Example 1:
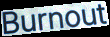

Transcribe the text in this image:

Burnout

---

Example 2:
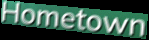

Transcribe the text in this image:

Hometown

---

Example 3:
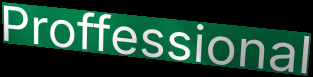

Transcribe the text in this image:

Proffessional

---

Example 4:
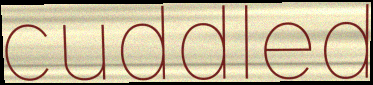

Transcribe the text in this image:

cuddled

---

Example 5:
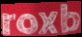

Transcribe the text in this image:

roxb